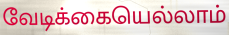
வேடிக்கையெல்லாம்